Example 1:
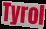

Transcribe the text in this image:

Tyrol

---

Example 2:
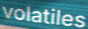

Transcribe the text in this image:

volatiles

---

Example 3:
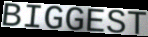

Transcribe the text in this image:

BIGGEST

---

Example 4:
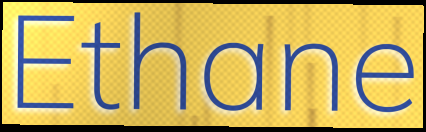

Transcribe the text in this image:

Ethane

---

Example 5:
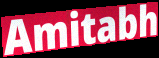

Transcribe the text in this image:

Amitabh